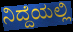
ನಿದ್ದೆಯಲ್ಲಿ